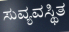
ಸುವ್ಯವಸ್ಥಿತ